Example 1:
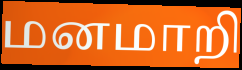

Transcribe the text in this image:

மனமாறி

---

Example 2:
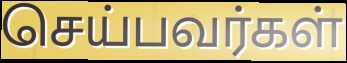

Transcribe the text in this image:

செய்பவர்கள்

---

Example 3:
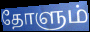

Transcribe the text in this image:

தோளும்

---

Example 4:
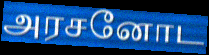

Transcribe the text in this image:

அரசனோட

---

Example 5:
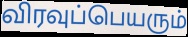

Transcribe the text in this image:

விரவுப்பெயரும்